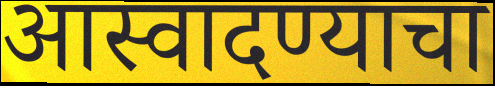
आस्वादण्याचा